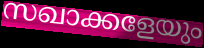
സഖാക്കളേയും